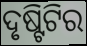
ଦୃଷ୍ଟିଟିର